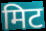
मिट